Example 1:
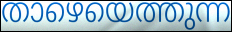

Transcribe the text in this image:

താഴെയെത്തുന്ന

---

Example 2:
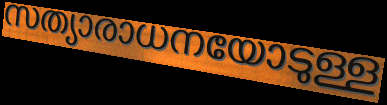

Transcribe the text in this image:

സത്യാരാധനയോടുള്ള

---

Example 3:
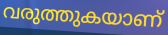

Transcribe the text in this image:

വരുത്തുകയാണ്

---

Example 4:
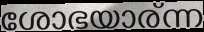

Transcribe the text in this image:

ശോഭയാര്ന്ന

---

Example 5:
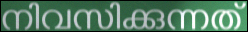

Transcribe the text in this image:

നിവസിക്കുന്നത്